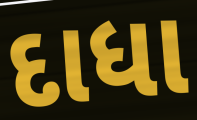
દાધા